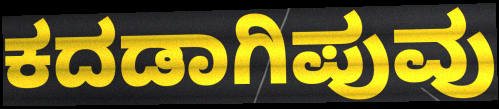
ಕದಡಾಗಿಪುವು